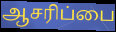
ஆசரிப்பை